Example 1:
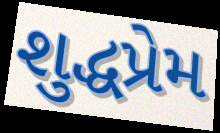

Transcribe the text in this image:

શુદ્ધપ્રેમ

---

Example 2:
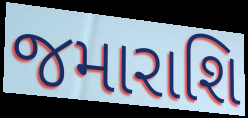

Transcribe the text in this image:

જમારાશિ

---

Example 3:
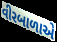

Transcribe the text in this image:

વીરબાળાએ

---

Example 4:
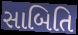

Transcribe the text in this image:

સાબિતિ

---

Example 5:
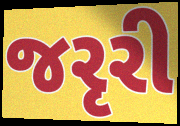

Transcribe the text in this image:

જરૃરી